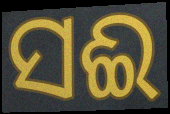
ସଈ